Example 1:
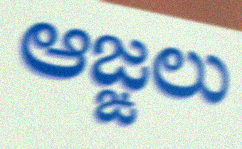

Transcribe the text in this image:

ఆజ్ఙలు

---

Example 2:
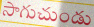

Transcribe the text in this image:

సాగుచుండు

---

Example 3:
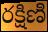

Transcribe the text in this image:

రక్షిణి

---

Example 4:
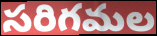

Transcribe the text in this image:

సరిగమల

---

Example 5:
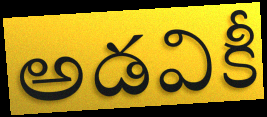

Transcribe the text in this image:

అడవికీ